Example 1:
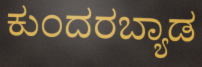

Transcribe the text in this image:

ಕುಂದರಬ್ಯಾಡ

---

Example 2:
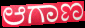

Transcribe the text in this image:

ಆಗಾಣ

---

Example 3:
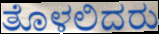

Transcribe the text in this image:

ತೊಳಲಿದರು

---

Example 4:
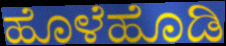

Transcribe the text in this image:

ಹೊಳೆಹೊಡಿ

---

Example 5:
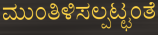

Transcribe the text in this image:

ಮುಂತಿಳಿಸಲ್ಪಟ್ಟಂತೆ